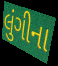
લુંગીના